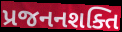
પ્રજનનશક્તિ